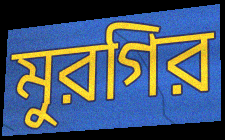
মুরগির